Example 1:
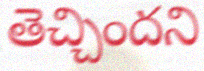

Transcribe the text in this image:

తెచ్చిందని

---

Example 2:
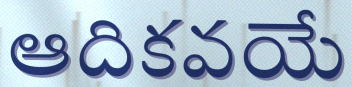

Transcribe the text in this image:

ఆదికవయే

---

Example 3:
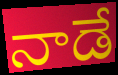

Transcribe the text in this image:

నాడే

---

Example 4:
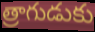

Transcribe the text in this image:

త్రాగుడుకు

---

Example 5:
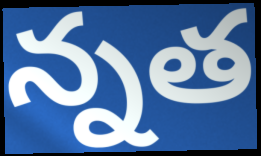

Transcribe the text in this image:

న్నత